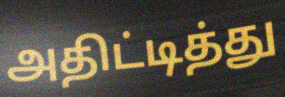
அதிட்டித்து